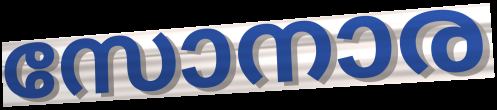
സോനാര